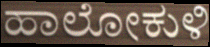
ಹಾಲೋಕುಳಿ